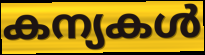
കന്യകൾ